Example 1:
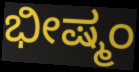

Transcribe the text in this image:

ಭೀಷ್ಮಂ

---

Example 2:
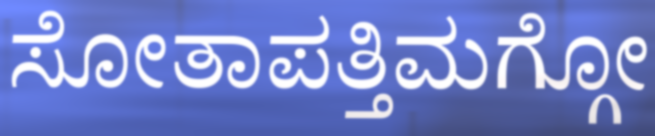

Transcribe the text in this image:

ಸೋತಾಪತ್ತಿಮಗ್ಗೋ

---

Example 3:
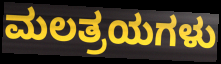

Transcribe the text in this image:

ಮಲತ್ರಯಗಳು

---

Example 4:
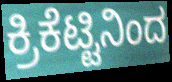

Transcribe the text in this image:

ಕ್ರಿಕೆಟ್ಟಿನಿಂದ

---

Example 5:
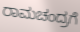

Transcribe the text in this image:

ರಾಮಚಂದ್ರಗೆ